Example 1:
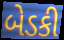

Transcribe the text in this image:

બેડકી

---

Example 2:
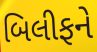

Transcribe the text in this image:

બિલીફને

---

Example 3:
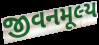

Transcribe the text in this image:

જીવનમૂલ્ય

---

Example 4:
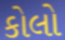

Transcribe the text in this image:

કોલો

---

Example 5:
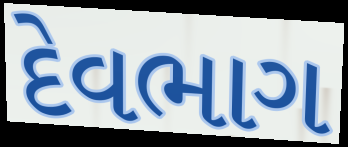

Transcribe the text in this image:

દેવભાગ